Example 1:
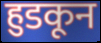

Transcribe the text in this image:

हुडकून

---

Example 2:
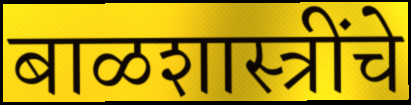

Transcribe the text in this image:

बाळशास्त्रींचे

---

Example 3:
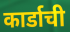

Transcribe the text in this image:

कार्डाची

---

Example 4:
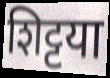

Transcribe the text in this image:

शिट्टया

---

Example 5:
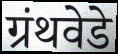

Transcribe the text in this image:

ग्रंथवेडे